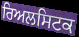
ਰਿਅਲਸਿਟਕ